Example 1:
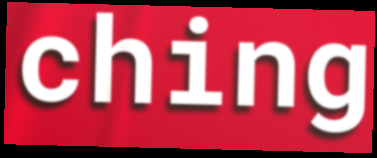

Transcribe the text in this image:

ching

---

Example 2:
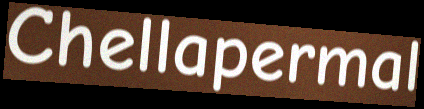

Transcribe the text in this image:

Chellapermal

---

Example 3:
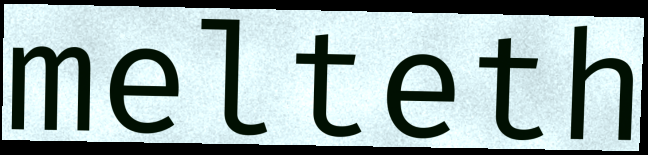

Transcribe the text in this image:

melteth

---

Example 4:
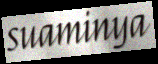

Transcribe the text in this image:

suaminya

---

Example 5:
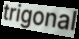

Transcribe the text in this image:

trigonal